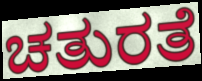
ಚತುರತೆ